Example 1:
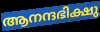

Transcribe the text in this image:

ആനന്ദഭിക്ഷു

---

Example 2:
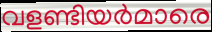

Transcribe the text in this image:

വളണ്ടിയർമാരെ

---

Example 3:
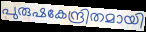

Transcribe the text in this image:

പുരുഷകേന്ദ്രിതമായി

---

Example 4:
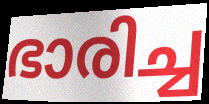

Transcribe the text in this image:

ഭാരിച്ച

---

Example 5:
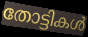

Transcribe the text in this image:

തോട്ടികൾ